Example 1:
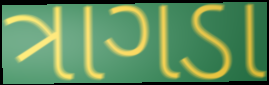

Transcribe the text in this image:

ત્રાગડા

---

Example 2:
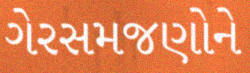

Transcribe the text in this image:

ગેરસમજણોને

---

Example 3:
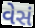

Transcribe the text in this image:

વેસં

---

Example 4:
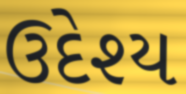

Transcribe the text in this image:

ઉદેશ્ય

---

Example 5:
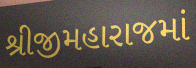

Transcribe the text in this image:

શ્રીજીમહારાજમાં